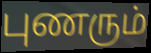
புணரும்